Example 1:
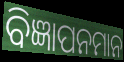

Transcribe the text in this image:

ବିଜ୍ଞାପନମାନ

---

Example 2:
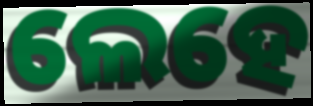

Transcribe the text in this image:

ଲେହେ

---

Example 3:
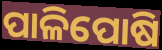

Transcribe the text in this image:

ପାଳିପୋଷି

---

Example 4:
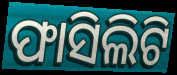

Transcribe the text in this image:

ଫାସିଲିଟି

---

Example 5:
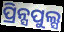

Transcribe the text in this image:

ପ୍ରିନ୍ସପୁଲ୍ସ